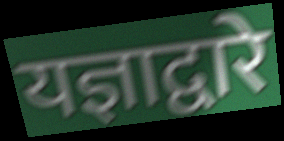
यज्ञाद्वारे